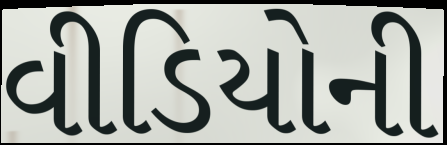
વીડિયોની